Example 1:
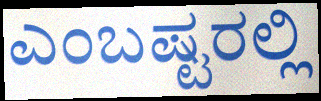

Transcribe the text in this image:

ಎಂಬಷ್ಟರಲ್ಲಿ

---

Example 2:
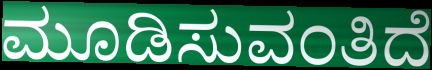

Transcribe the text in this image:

ಮೂಡಿಸುವಂತಿದೆ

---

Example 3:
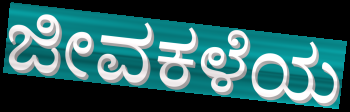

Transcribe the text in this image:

ಜೀವಕಳೆಯ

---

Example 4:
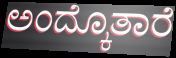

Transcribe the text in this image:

ಅಂದ್ಕೊತಾರೆ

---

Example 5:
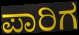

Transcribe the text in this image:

ಪಾರಿಗ